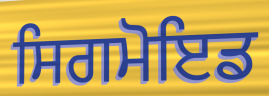
ਸਿਗਮੋਇਡ